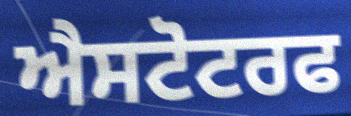
ਐਸਟੋਟਰਫ